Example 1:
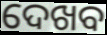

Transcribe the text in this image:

ଦେଖବ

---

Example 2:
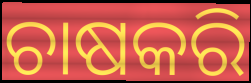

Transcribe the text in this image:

ଚାଷକରି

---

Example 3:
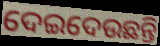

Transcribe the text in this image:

ଦେଇଦେଉଛନ୍ତି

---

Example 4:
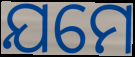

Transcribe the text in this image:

ଯମେ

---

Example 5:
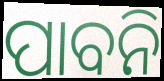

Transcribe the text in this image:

ପାବନି